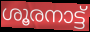
ശൂരനാട്ട്